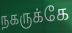
நகருக்கே